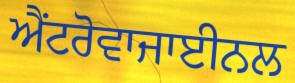
ਐਂਟਰੋਵਾਜਾਈਨਲ